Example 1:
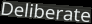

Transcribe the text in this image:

Deliberate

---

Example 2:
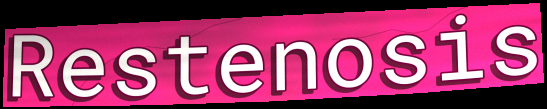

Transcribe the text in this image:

Restenosis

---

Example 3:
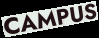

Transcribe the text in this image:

CAMPUS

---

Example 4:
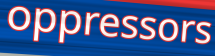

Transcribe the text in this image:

oppressors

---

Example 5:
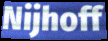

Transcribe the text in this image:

Nijhoff